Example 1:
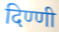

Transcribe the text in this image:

दिण्णी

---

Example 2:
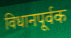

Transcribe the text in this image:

विधानपूर्वक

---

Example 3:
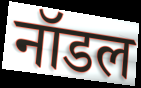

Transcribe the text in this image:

नॉडल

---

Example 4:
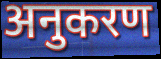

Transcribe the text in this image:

अनुकरण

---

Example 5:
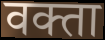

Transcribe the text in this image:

वक्ता